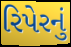
રિપેરનું